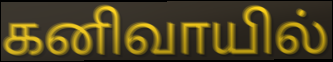
கனிவாயில்